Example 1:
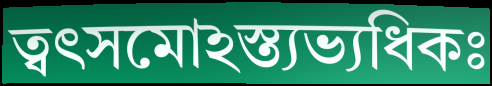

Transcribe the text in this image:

ত্বৎসমোঽস্ত্যভ্যধিকঃ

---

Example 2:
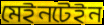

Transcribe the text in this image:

মেইনটেইন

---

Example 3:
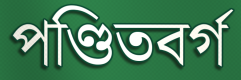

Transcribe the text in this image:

পণ্ডিতবর্গ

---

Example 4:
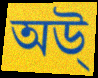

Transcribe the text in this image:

অউ্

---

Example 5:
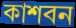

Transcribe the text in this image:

কাশবন